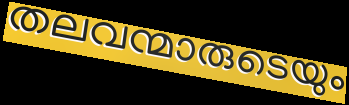
തലവന്മാരുടെയും